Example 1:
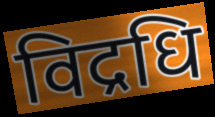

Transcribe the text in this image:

विद्रधि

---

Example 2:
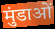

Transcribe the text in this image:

मुंडाओं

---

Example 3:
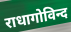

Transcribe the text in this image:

राधागोविन्द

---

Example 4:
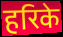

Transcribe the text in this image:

हरिके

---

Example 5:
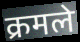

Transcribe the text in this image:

क्रमले